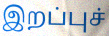
இறப்புச்